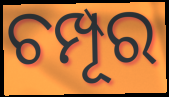
ଚମ୍ପୂର